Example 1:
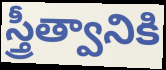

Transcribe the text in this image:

స్త్రీత్వానికి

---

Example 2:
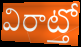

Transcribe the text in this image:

విరాట్తో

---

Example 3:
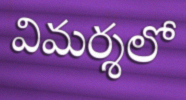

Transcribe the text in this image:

విమర్శలో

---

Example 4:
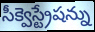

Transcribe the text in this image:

సీక్వెస్ట్రేషన్ను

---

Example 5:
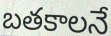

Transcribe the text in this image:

బతకాలనే